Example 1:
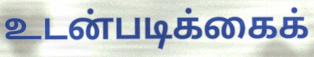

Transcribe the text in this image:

உடன்படிக்கைக்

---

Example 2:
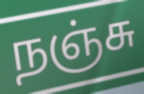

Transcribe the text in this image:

நஞ்சு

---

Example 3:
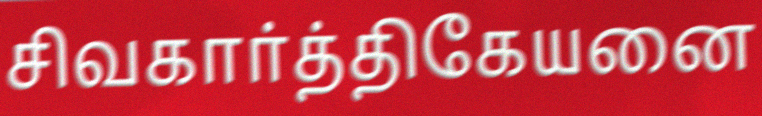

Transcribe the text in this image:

சிவகார்த்திகேயனை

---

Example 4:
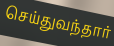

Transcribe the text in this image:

செய்துவந்தார்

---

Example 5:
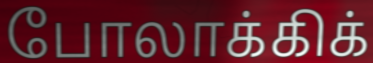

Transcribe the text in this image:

போலாக்கிக்